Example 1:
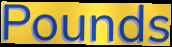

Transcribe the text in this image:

Pounds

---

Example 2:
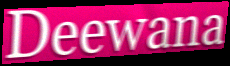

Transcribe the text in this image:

Deewana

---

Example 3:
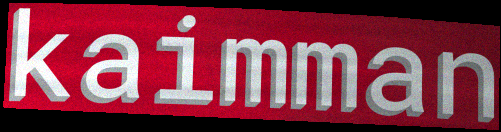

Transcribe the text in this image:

kaimman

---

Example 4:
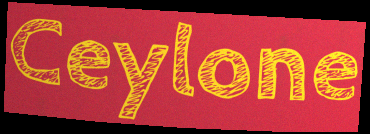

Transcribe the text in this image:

Ceylone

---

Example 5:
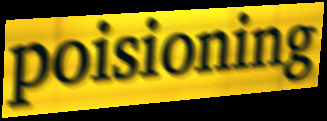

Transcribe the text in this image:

poisioning